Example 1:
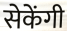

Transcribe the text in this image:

सेकेंगी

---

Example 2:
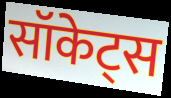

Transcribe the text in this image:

सॉकेट्स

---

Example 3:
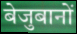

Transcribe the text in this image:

बेजुबानों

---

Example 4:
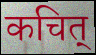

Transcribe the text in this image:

कचित्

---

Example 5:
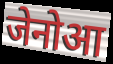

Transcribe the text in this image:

जेनोआ